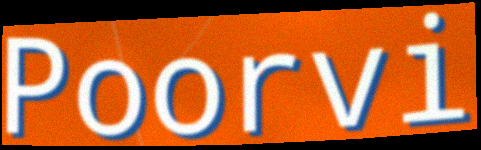
Poorvi